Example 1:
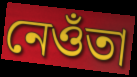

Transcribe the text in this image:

নেওঁতা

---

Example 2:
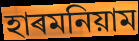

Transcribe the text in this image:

হাৰমনিয়াম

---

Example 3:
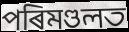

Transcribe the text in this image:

পৰিমণ্ডলত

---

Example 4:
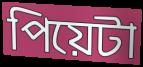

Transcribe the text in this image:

পিয়েটা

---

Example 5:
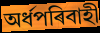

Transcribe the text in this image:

অৰ্ধপৰিবাহী